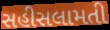
સહીસલામતી